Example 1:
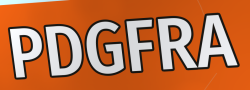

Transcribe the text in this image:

PDGFRA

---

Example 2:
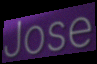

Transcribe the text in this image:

Jose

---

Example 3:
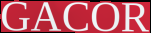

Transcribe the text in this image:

GACOR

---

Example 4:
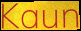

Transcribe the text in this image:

Kaun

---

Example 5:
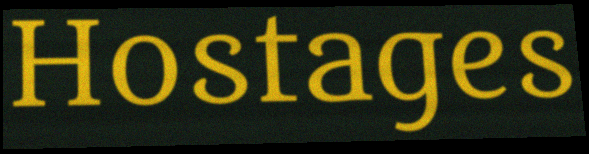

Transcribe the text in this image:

Hostages